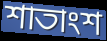
শাতাংশ